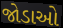
જોડાઓ